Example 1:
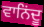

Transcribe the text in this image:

ਵਾਨਿਂਦੂ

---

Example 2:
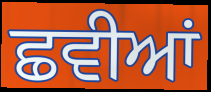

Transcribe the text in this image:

ਛਵੀਆਂ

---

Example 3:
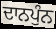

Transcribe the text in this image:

ਦਾਨਪੁੰਨ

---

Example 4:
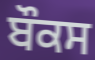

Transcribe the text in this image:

ਬੌਕਸ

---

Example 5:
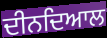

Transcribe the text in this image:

ਦੀਨਦਿਆਲ